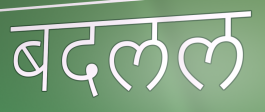
बदलल